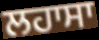
ਲਹਾਸਾ